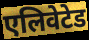
एलिवेटेड